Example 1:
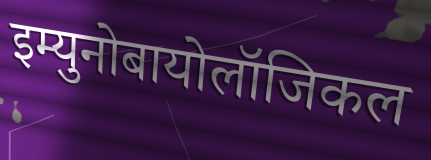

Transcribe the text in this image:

इम्युनोबायोलॉजिकल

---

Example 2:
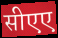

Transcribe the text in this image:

सीएए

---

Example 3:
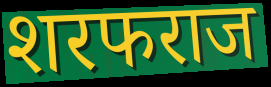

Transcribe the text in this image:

शरफराज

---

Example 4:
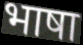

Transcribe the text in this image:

भाषा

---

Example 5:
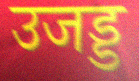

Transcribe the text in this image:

उजड्ड